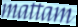
mattam